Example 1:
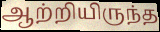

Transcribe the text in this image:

ஆற்றியிருந்த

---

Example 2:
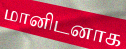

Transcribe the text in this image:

மானிடனாக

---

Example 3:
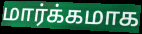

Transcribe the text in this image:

மார்க்கமாக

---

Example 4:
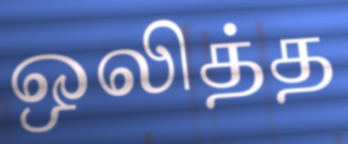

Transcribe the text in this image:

ஒலித்த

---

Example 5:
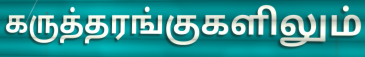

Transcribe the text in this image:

கருத்தரங்குகளிலும்